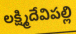
లక్ష్మిదేవిపల్లి